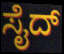
ಸೈದ್